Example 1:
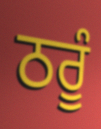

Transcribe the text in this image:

ਠਰੂੰ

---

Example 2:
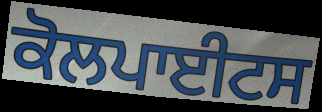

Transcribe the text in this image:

ਕੋਲਪਾਈਟਸ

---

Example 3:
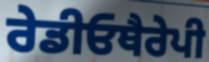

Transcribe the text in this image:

ਰੇਡੀਓਥੈਰੇਪੀ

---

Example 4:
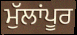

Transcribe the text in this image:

ਮੁੱਲਾਂਪੂਰ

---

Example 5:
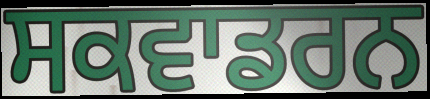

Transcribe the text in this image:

ਸਕਵਾਡਰਨ